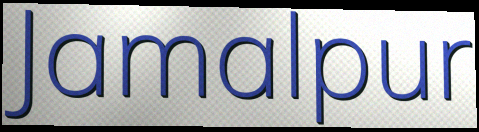
Jamalpur